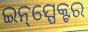
ଇନ୍‌ସ୍ପେକ୍ଟର